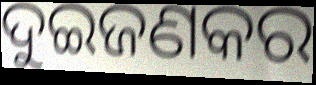
ଦୁଇଜଣକର